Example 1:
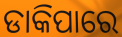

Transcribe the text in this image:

ଡାକିପାରେ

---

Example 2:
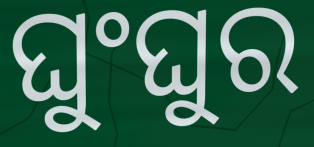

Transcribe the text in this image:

ଘୁଂଘୁର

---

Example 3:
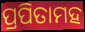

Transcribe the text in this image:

ପ୍ରପିତାମହ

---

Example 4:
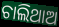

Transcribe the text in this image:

ଚାଲିଥାଅ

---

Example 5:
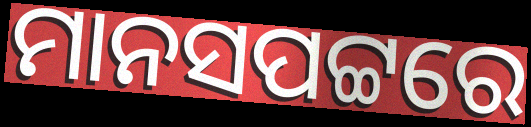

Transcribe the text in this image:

ମାନସପଟ୍ଟରେ